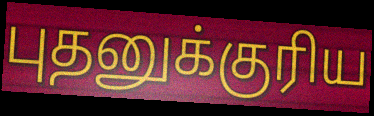
புதனுக்குரிய